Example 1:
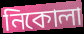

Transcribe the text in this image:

নিকোলা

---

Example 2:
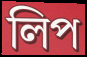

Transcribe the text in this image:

লিপ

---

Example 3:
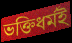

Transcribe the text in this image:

ভক্তিধৰ্মই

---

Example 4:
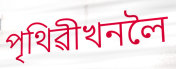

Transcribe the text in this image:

পৃথিৱীখনলৈ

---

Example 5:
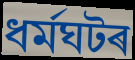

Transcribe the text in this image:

ধৰ্মঘটৰ